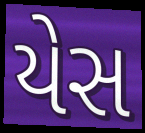
યેસ